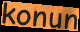
konun